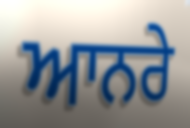
ਆਨਰੇ